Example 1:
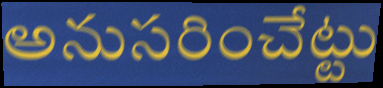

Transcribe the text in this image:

అనుసరించేట్టు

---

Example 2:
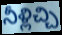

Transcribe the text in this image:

నీళ్లిచ్చి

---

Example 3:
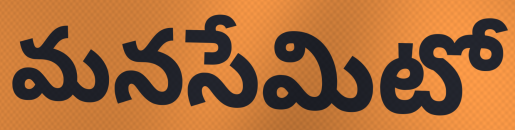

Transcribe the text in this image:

మనసేమిటో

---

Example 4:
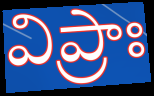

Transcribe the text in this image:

విప్రాః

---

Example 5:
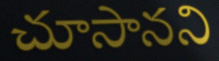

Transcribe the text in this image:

చూసానని